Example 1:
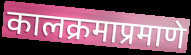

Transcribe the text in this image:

कालक्रमाप्रमाणे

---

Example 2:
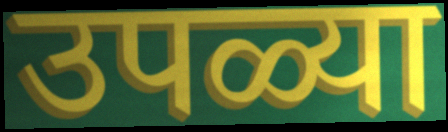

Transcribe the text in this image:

उपळ्या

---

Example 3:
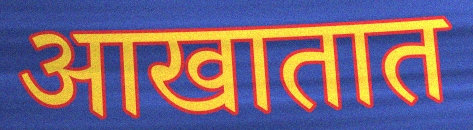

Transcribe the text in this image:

आखातात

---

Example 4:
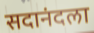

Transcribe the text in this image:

सदानंदला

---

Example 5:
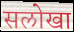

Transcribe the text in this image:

सलोखा